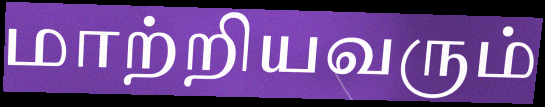
மாற்றியவரும்